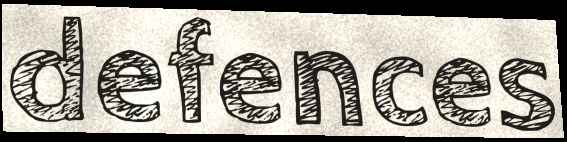
defences